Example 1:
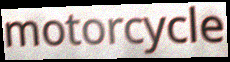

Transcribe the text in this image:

motorcycle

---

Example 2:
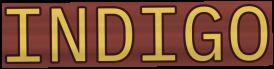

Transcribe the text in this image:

INDIGO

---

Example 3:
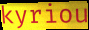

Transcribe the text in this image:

kyriou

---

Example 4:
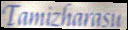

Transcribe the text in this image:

Tamizharasu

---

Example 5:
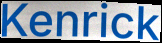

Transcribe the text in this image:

Kenrick